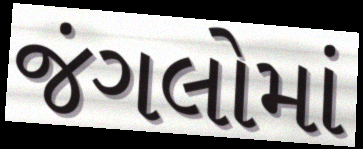
જંગલોમાં